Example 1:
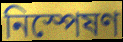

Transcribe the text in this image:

নিস্পেষণ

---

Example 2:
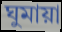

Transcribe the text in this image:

ঘুমায়া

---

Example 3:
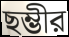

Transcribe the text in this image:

ছম্ভীর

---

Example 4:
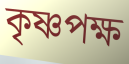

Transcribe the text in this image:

কৃষ্ণপক্ষ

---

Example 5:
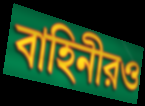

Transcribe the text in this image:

বাহিনীরও